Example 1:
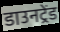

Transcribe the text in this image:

डाउनट्रेंड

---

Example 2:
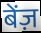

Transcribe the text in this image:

बेंज़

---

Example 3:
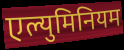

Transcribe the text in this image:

एल्युमिनियम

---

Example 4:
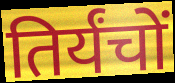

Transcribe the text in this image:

तिर्यंचों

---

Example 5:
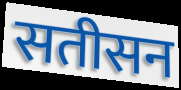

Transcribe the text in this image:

सतीसन